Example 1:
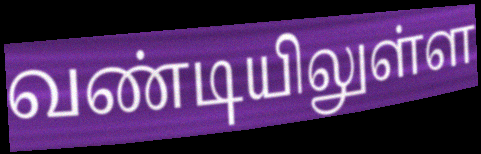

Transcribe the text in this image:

வண்டியிலுள்ள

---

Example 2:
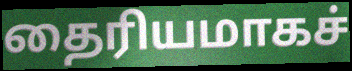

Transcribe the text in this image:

தைரியமாகச்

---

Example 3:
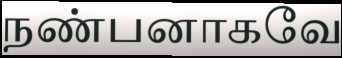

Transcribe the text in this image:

நண்பனாகவே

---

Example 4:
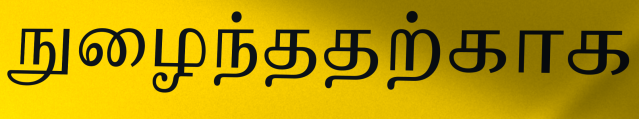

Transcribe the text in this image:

நுழைந்ததற்காக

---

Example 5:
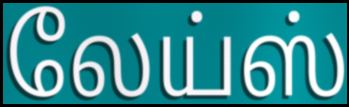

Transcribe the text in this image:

லேய்ஸ்